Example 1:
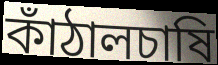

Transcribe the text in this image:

কাঁঠালচাষি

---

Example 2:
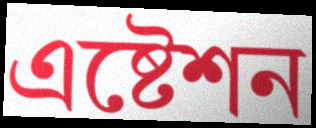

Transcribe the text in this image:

এষ্টেশন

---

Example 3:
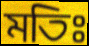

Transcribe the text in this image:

মতিঃ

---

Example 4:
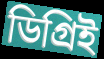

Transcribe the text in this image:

ডিগ্রিই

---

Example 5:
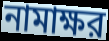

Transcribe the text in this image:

নামাক্ষর